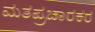
ಮತಪ್ರಚಾರಕರ